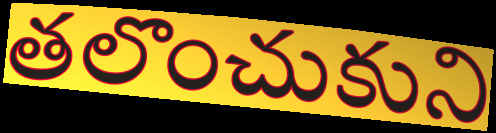
తలొంచుకుని